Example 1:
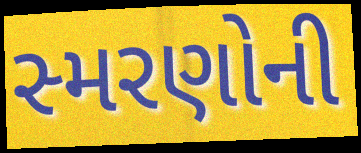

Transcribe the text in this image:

સ્મરણોની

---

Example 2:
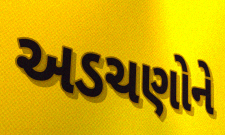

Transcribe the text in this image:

અડચણોને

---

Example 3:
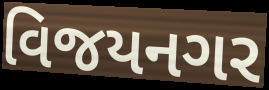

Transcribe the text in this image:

વિજયનગર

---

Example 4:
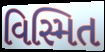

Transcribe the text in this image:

વિસ્મિત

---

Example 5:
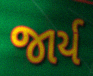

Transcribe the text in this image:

જાર્ય